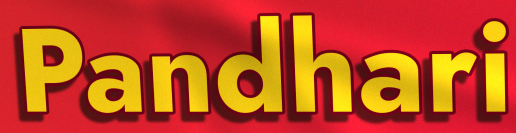
Pandhari